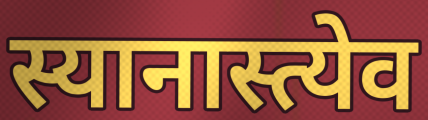
स्यानास्त्येव